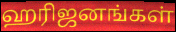
ஹரிஜனங்கள்